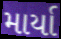
માર્યા